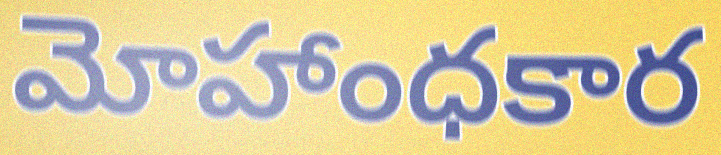
మోహాంధకార